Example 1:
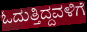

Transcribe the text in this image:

ಓದುತ್ತಿದ್ದವಳಿಗೆ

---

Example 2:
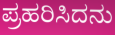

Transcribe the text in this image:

ಪ್ರಹರಿಸಿದನು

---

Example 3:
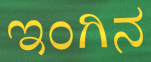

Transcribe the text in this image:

ಇಂಗಿನ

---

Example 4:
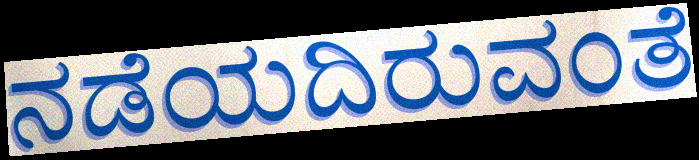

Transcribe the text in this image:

ನಡೆಯದಿರುವಂತೆ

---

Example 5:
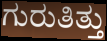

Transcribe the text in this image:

ಗುರುತಿತ್ತು